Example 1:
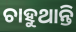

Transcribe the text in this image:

ଚାହୁଥାନ୍ତି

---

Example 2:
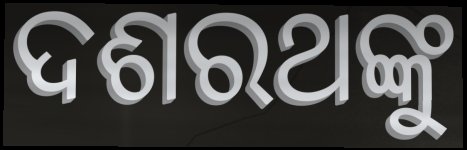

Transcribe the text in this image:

ଦଶରଥଙ୍କୁ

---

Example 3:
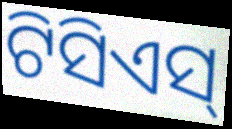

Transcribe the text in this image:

ଟିସିଏସ୍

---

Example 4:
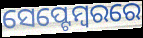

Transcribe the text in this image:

ସେପ୍ଟେମ୍ୱରରେ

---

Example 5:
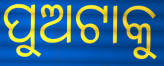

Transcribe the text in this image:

ପୁଅଟାକୁ